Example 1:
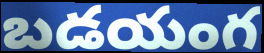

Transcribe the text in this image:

బడయంగ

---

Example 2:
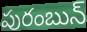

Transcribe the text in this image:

పురంబున్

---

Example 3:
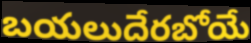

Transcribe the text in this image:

బయలుదేరబోయే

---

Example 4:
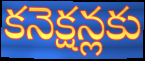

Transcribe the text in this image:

కనెక్షన్లకు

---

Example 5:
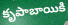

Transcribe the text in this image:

కృపాబాయికి